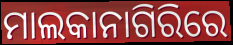
ମାଲକାନାଗିରିରେ